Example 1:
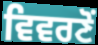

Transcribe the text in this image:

ਵਿਵਰਣੋਂ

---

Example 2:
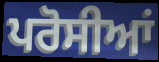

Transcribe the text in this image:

ਪਰੋਸੀਆਂ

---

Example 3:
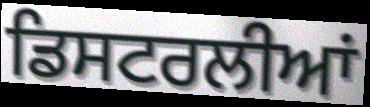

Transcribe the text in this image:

ਡਿਸਟਰਲੀਆਂ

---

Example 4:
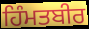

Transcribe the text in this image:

ਹਿੰਮਤਬੀਰ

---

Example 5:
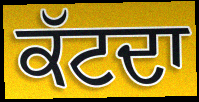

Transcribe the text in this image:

ਕੱਟਦਾ